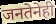
जनतेनेही